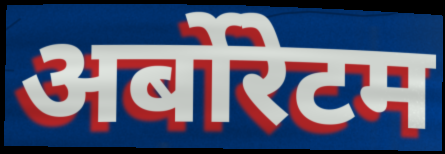
अर्बोरेटम